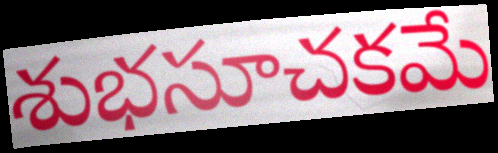
శుభసూచకమే